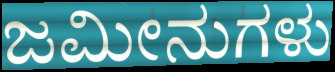
ಜಮೀನುಗಳು